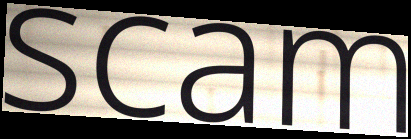
scam